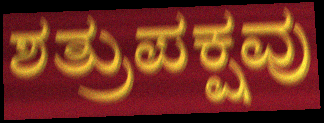
ಶತ್ರುಪಕ್ಷವು